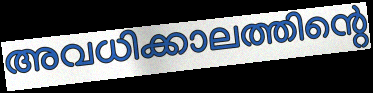
അവധിക്കാലത്തിന്റെ